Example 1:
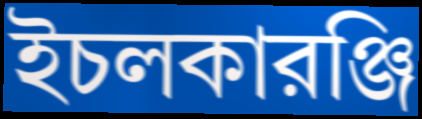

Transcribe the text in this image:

ইচলকারঞ্জি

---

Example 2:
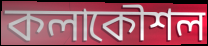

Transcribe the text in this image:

কলাকৌশল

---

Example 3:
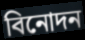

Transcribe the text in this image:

বিনোদন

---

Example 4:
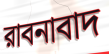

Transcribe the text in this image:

রাবনাবাদ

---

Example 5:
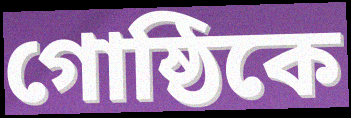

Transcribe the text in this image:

গোষ্ঠিকে